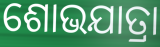
ଶୋଭଯାତ୍ରା